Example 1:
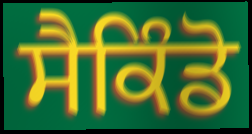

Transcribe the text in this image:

ਸੈਕਿੰਡੋ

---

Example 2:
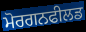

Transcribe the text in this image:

ਮੋਰਗਨਫੀਲਡ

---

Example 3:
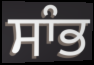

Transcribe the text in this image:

ਸਾੰਭ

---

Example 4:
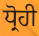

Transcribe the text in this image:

ਧ੍ਰੋਹੀ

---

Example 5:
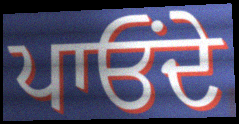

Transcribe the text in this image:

ਪਾਓਂਦੇ